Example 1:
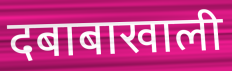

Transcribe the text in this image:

दबाबाखाली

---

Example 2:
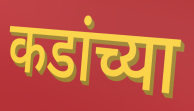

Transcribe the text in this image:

कडांच्या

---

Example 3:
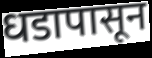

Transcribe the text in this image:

धडापासून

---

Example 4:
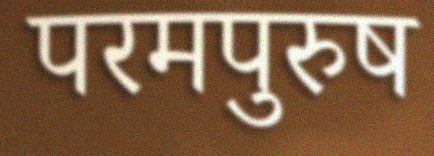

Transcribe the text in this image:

परमपुरुष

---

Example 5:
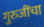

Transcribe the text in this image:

गुरुजींचा